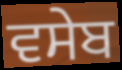
ਵਸੇਬ